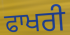
ਫਾਖਰੀ